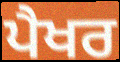
ਪੈਖਰ